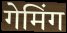
गेमिंग